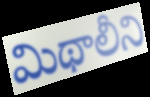
మిథాలీని